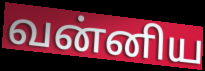
வன்னிய